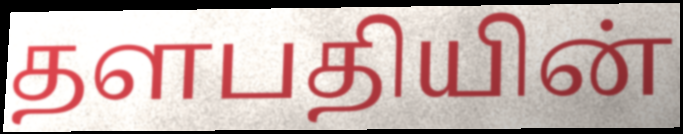
தளபதியின்